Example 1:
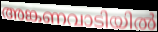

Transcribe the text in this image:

അങ്കണവാടിയിൽ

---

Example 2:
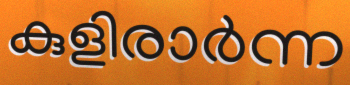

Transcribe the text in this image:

കുളിരാർന്ന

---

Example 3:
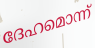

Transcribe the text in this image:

ദേഹമൊന്ന്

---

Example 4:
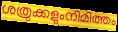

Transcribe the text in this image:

ശത്രുക്കളുംനിമിത്തം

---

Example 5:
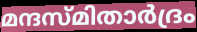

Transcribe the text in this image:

മന്ദസ്മിതാർദ്രം